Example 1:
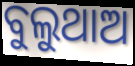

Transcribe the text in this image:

ବୁଲୁଥାଅ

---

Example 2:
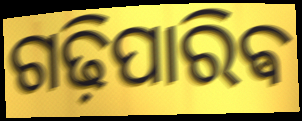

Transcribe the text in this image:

ଗଢ଼ିପାରିଵ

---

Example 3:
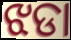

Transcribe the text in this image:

ଝଡା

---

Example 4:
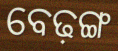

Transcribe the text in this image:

ବେଢ଼ଙ୍ଗ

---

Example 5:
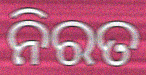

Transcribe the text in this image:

ନିରତ